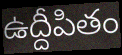
ఉద్దీపితం